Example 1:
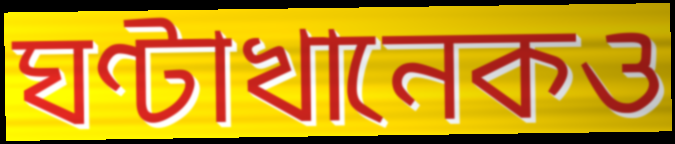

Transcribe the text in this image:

ঘণ্টাখানেকও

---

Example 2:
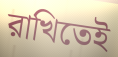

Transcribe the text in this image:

রাখিতেই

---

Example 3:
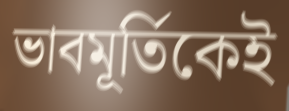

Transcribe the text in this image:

ভাবমূর্তিকেই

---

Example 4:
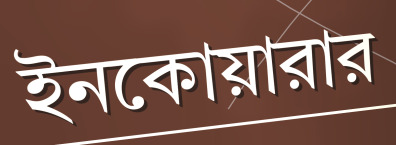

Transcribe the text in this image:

ইনকোয়ারার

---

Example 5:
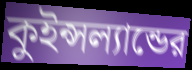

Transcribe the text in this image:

কুইন্সল্যান্ডের